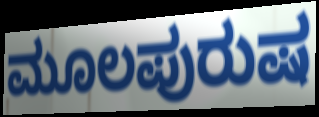
ಮೂಲಪುರುಷ